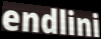
endlini